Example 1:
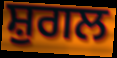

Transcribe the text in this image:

ਸ਼ੁਗਲ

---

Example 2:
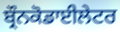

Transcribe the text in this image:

ਬ੍ਰੌਨਕੋਡਾਈਲੇਟਰ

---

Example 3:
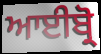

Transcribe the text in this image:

ਆਈਬ੍ਰੋ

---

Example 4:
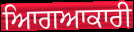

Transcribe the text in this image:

ਆਿਗਆਕਾਰੀ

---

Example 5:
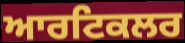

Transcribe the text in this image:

ਆਰਟਿਕਲਰ